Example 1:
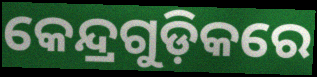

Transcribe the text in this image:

କେନ୍ଦ୍ରଗୁଡ଼ିକରେ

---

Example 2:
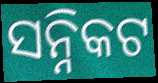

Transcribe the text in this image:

ସନ୍ନିକଟ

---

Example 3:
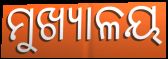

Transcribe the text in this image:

ମୁଖ୍ୟାଳୟ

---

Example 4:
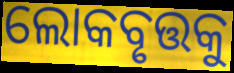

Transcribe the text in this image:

ଲୋକବୃତ୍ତକୁ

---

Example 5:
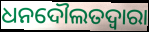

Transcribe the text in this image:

ଧନଦୌଲତଦ୍ଵାରା